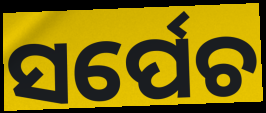
ସର୍ପେଚ